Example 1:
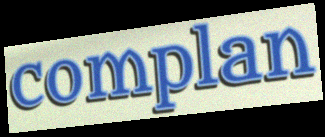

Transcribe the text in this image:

complan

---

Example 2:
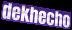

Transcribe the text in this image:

dekhecho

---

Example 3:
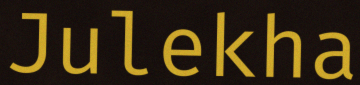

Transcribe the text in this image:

Julekha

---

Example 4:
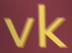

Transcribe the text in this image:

vk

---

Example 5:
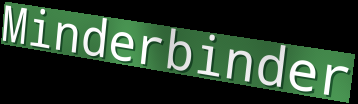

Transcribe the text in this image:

Minderbinder